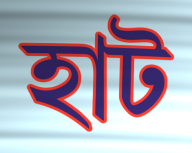
হাট